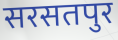
सरसतपुर